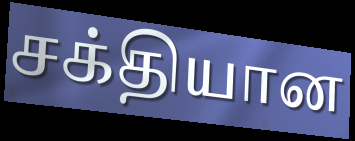
சக்தியான